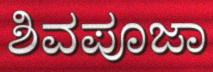
ಶಿವಪೂಜಾ